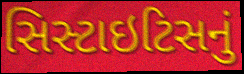
સિસ્ટાઇટિસનું